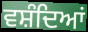
ਵਸ਼ੰਦਿਆਂ